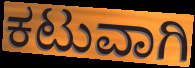
ಕಟುವಾಗಿ